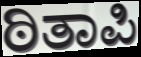
ಠಿತಾಪಿ